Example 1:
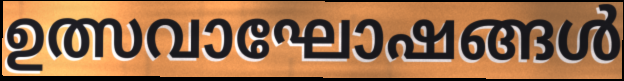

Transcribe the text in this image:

ഉത്സവാഘോഷങ്ങൾ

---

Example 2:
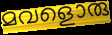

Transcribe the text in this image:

മവളൊരു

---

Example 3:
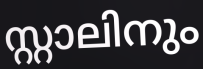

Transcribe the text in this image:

സ്റ്റാലിനും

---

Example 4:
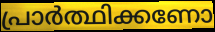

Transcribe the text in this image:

പ്രാർത്ഥിക്കണോ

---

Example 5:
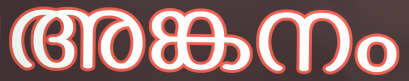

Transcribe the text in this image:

അങ്കനം